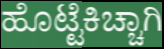
ಹೊಟ್ಟೆಕಿಚ್ಚಾಗಿ